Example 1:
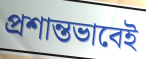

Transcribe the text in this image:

প্রশান্তভাবেই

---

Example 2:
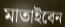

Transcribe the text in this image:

মাতাইবেন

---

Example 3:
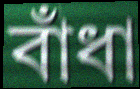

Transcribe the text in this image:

বাঁধা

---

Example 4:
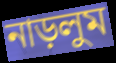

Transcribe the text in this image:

নাড়লুম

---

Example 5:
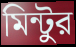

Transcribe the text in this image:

মিন্টুর